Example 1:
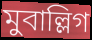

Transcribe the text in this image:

মুবাল্লিগ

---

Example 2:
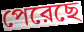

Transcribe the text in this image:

পেরেছে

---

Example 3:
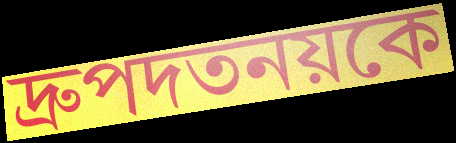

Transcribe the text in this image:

দ্রুপদতনয়কে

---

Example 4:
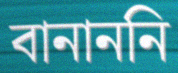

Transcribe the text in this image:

বানাননি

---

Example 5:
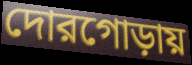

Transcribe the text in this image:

দোরগোড়ায়